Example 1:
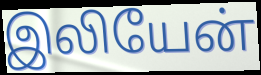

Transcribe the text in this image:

இலியேன்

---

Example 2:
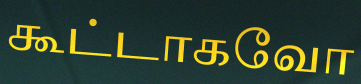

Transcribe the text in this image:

கூட்டாகவோ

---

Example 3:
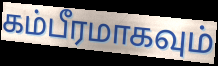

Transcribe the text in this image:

கம்பீரமாகவும்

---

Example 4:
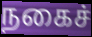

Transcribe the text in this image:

நகைச்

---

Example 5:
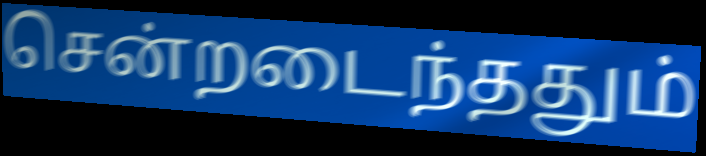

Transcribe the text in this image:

சென்றடைந்ததும்